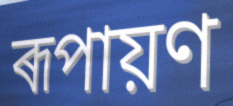
ৰূপায়ণ